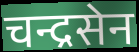
चन्द्रसेन